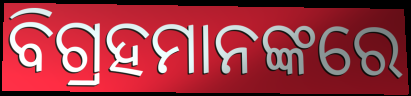
ବିଗ୍ରହମାନଙ୍କରେ